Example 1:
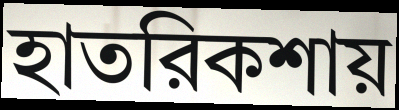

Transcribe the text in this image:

হাতরিকশায়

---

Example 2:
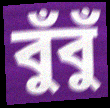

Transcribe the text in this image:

বুঁবুঁ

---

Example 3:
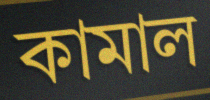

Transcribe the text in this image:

কামাল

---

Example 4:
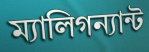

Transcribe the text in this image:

ম্যালিগন্যান্ট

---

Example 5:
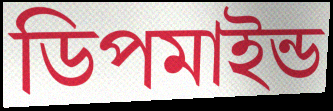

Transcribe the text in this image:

ডিপমাইন্ড